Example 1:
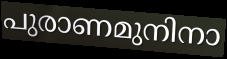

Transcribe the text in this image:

പുരാണമുനിനാ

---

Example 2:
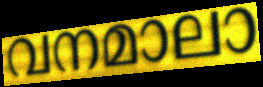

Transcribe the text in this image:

വനമാലാ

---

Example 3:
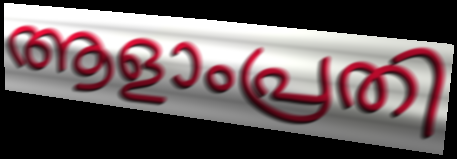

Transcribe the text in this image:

ആളാംപ്രതി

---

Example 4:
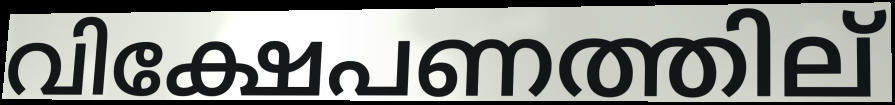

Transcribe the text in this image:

വിക്ഷേപണത്തില്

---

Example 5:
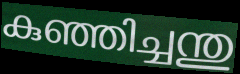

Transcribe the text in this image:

കുഞ്ഞിച്ചന്തു